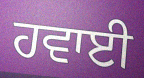
ਹਵਾਈ